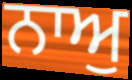
ਨਾਅੁ